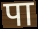
पा